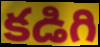
కడిగి